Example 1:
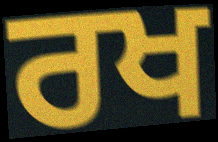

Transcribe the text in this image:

ਰਖ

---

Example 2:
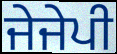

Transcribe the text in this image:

ਜੇਜੇਪੀ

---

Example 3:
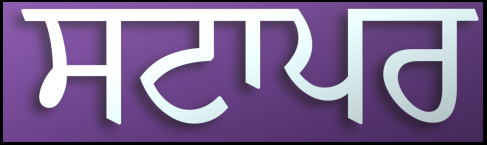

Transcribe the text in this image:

ਸਟਾਪਰ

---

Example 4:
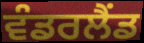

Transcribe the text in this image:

ਵੰਡਰਲੈਂਡ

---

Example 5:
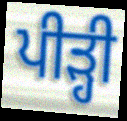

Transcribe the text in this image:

ਪੀੜ੍ਹੀ